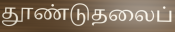
தூண்டுதலைப்